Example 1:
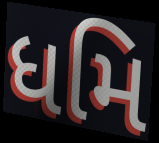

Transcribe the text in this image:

ધમિ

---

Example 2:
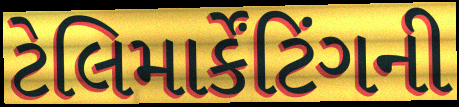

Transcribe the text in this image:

ટેલિમાર્કેંટિંગની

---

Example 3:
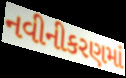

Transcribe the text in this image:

નવીનીકરણમાં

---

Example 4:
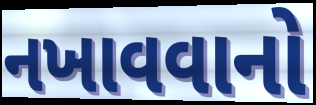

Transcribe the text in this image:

નખાવવાનો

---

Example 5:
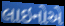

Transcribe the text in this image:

લાઇનોએ